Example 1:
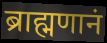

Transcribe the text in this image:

ब्राह्मणानं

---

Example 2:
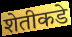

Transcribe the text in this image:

शेतीकडे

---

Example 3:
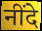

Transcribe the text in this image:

नींदे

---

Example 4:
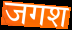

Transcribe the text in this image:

जगश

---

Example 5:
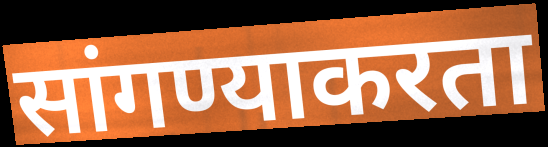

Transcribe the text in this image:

सांगण्याकरता